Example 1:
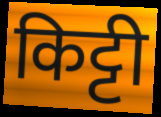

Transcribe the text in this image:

किट्टी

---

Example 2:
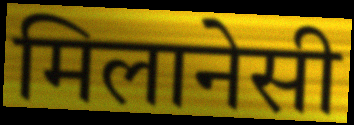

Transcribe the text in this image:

मिलानेसी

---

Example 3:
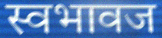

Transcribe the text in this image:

स्वभावज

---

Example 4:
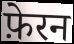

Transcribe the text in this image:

फ़ेरन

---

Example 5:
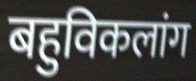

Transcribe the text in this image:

बहुविकलांग